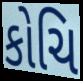
કોચિ